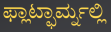
ಫ್ಲಾಟ್ಫಾರ್ಮ್ನಲ್ಲಿ